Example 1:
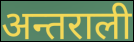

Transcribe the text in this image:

अन्तराली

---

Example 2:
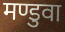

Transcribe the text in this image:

मण्डुवा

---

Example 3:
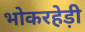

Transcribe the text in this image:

भोकरहेड़ी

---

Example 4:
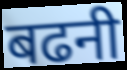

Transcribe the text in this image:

बढनी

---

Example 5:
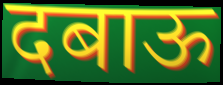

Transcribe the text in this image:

दबाऊ